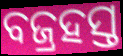
ବଜ୍ରହସ୍ତ